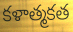
కళాత్మకత